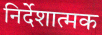
निर्देशात्मक